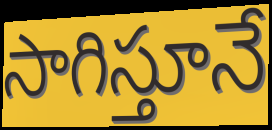
సాగిస్తూనే